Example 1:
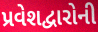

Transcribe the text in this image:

પ્રવેશદ્વારોની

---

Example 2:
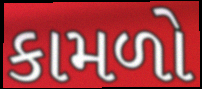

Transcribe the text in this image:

કામળો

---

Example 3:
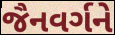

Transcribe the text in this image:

જૈનવર્ગને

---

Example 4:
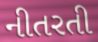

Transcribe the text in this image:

નીતરતી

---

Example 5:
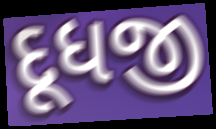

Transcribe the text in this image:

દૂધજી